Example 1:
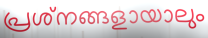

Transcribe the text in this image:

പ്രശ്‌നങ്ങളായാലും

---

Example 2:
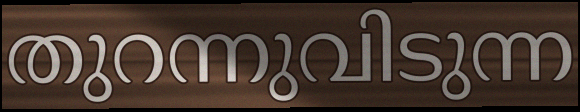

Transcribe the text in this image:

തുറന്നുവിടുന്ന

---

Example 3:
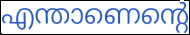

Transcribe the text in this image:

എന്താണെന്റെ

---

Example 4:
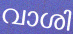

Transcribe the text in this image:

വാശി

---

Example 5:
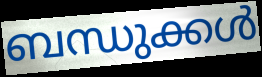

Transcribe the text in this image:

ബന്ധുക്കൾ